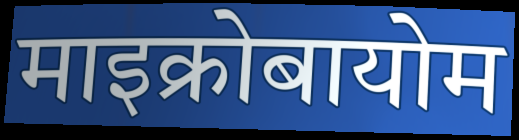
माइक्रोबायोम